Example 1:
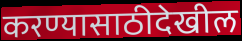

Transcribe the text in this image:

करण्यासाठीदेखील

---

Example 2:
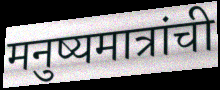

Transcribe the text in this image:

मनुष्यमात्रांची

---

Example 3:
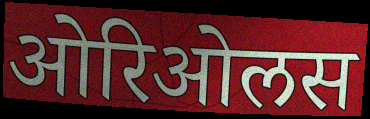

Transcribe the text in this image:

ओरिओलस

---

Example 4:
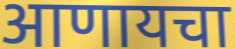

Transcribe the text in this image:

आणायचा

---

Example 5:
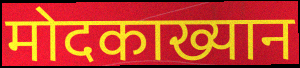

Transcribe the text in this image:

मोदकाख्यान